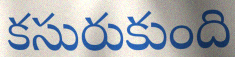
కసురుకుంది